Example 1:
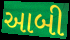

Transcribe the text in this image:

આબી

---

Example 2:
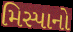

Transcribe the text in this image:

મિસ્પાનો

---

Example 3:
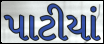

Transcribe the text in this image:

પાટીયાં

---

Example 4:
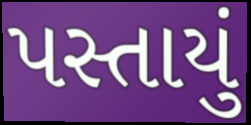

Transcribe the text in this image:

પસ્તાયું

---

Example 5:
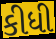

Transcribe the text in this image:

કીધી